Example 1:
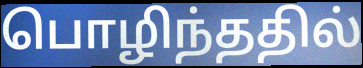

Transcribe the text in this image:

பொழிந்ததில்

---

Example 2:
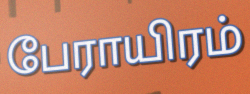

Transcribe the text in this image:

பேராயிரம்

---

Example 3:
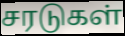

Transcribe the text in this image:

சரடுகள்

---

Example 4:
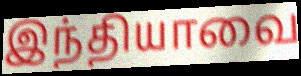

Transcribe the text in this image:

இந்தியாவை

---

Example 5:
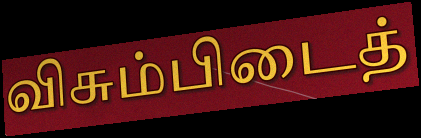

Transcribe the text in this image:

விசும்பிடைத்